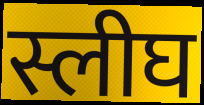
स्लीघ